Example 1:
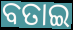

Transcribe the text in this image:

ବତାଇ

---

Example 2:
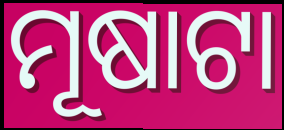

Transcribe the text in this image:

ମୂଷାଟା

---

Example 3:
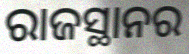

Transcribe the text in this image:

ରାଜସ୍ଥାନର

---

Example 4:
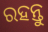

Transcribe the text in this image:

ରହନ୍ତୁ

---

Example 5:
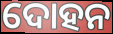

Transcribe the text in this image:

ଦୋହନ